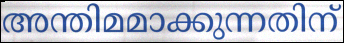
അന്തിമമാക്കുന്നതിന്